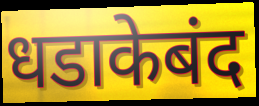
धडाकेबंद